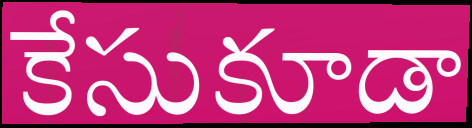
కేసుకూడా